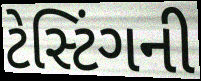
ટેસ્ટિંગની